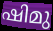
ഷിമു